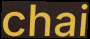
chai